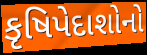
કૃષિપેદાશોનો